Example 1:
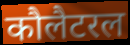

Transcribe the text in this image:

कौलैटरल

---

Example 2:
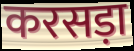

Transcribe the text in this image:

करसड़ा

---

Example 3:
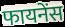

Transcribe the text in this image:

फायनेंस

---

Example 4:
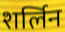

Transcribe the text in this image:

शर्लिन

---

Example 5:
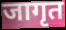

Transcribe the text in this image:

जागृत